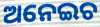
ଅନେଇଚ